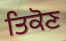
ਤਿਕੋਣ